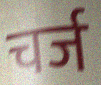
चर्ज